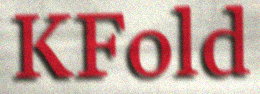
KFold